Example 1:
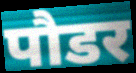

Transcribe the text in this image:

पौडर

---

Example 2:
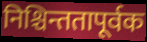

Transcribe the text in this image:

निश्चिन्ततापूर्वक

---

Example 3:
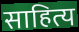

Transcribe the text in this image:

साहित्‍य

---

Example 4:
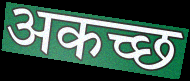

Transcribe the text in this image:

अकच्छ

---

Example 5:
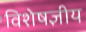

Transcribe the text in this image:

विशेषज्ञीय